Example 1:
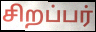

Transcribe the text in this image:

சிறப்பர்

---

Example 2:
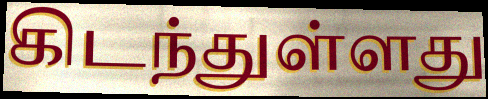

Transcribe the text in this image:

கிடந்துள்ளது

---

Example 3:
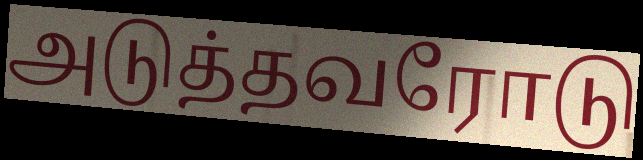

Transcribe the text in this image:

அடுத்தவரோடு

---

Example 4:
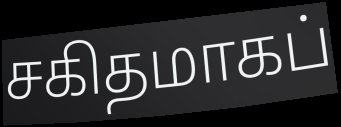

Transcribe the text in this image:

சகிதமாகப்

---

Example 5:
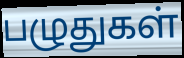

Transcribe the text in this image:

பழுதுகள்